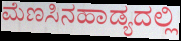
ಮೆಣಸಿನಹಾಡ್ಯದಲ್ಲಿ